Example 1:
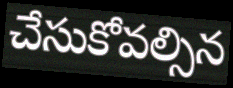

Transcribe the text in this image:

చేసుకోవల్సిన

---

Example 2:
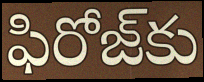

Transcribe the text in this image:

ఫిరోజ్‌కు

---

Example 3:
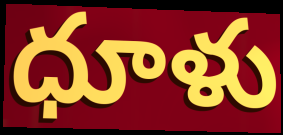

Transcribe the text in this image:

ధూళు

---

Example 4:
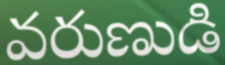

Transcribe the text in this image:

వరుణుడి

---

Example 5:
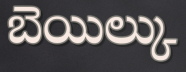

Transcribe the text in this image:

బెయిల్కు